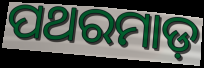
ପଥରମାଡ଼